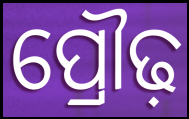
ପ୍ରୌଢ଼